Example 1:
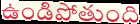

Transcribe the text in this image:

ఉండిపోతుంది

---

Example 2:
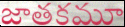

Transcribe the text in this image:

జాతకమూ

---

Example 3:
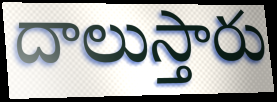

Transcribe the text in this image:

దాలుస్తారు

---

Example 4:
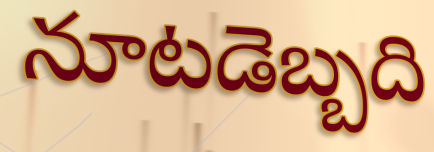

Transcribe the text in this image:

నూటడెబ్బది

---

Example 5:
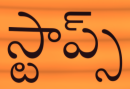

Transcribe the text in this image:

స్టాప్స్